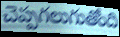
చెప్పగలుగుతోంది